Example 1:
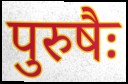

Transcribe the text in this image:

पुरुषैः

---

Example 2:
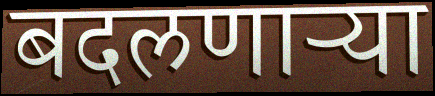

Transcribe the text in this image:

बदलणाऱ्या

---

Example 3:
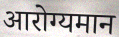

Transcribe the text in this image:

आरोग्यमान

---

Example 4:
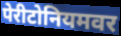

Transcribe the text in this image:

पेरीटोनियमवर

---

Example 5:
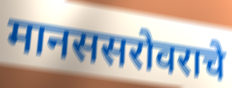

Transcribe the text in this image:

मानससरोवराचे